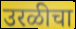
उरळीचा